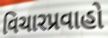
વિચારપ્રવાહો